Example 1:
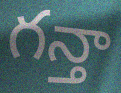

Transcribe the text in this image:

గన్తా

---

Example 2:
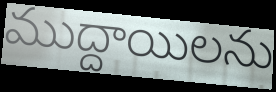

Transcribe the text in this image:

ముద్దాయిలను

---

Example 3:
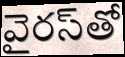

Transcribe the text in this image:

వైరస్‌తో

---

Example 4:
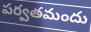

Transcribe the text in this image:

పర్వతమందు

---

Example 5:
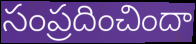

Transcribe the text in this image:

సంప్రదించిందా